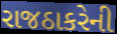
રાજઠાકરેની